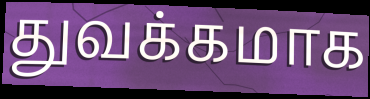
துவக்கமாக